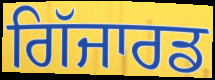
ਗਿੱਜਾਰਡ